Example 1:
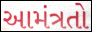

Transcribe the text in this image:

આમંત્રતો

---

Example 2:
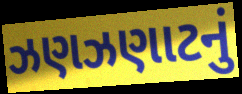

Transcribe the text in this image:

ઝણઝણાટનું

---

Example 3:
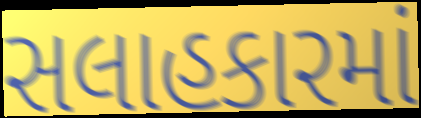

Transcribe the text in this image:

સલાહકારમાં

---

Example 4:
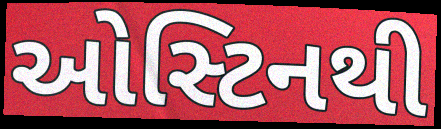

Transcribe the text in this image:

ઓસ્ટિનથી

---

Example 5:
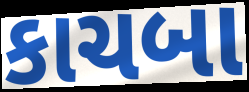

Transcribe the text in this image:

કાચબા